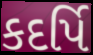
કદર્પિ